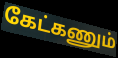
கேட்கணும்